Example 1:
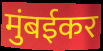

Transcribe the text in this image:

मुंबईकर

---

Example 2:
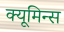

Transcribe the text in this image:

क्यूमिन्स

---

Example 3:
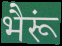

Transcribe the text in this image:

भैरूं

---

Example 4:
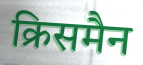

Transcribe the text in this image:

क्रिसमैन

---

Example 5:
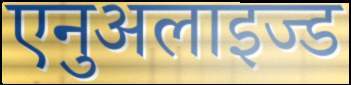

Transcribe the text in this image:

एनुअलाइज्ड